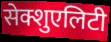
सेक्शुएलिटी